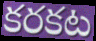
కరకట